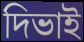
দিভাই